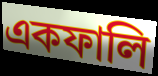
একফালি